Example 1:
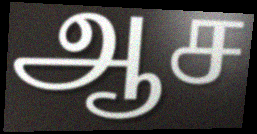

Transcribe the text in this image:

ஆச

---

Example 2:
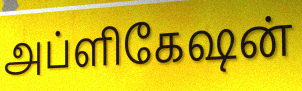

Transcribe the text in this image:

அப்ளிகேஷன்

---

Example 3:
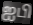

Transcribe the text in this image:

ஐபி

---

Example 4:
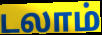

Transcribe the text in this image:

டலாம்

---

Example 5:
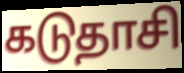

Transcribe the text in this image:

கடுதாசி